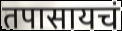
तपासायचं